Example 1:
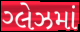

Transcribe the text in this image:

ગ્લેઝમાં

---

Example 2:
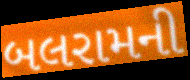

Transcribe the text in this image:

બલરામની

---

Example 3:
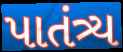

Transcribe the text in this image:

પાતંત્ર્ય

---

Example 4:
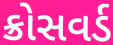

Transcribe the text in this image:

ક્રોસવર્ડ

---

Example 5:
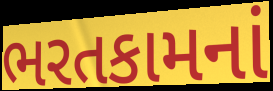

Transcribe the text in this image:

ભરતકામનાં